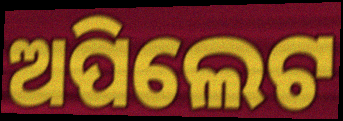
ଅପିଲେଟ